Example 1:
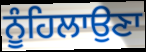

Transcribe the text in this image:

ਨੂੰਹਿਲਾਉਣਾ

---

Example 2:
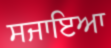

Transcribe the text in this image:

ਸਜਾਇਆ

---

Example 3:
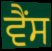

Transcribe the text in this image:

ਵੈਂਸ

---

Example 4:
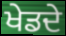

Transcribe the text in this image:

ਖੇਡਦੇ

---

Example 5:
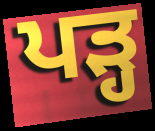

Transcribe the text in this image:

ਪੜ੍ਹ